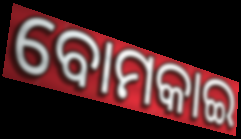
ବୋମକାଇ